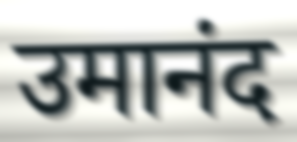
उमानंद